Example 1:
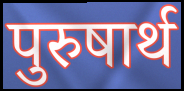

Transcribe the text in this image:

पुरुषार्थ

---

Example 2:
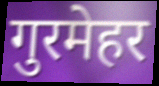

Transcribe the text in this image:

गुरमेहर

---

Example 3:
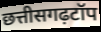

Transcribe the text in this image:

छत्तीसगढ़टॉप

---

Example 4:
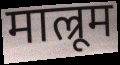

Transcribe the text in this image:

माल्रूम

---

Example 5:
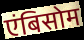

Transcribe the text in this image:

एंबिसोम